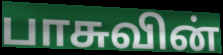
பாசுவின்